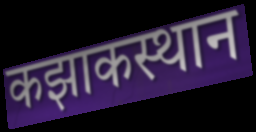
कझाकस्थान